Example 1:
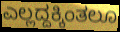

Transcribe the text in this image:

ಎಲ್ಲದ್ದಕ್ಕಿಂತಲೂ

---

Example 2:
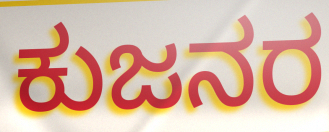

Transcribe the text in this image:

ಕುಜನರ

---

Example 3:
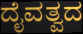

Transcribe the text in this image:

ದೈವತ್ವದ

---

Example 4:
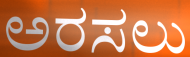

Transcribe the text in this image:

ಅರಸಲು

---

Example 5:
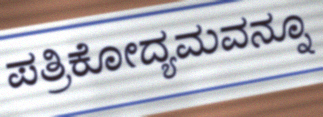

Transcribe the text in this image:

ಪತ್ರಿಕೋದ್ಯಮವನ್ನೂ